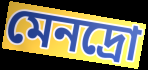
মেনদ্রো